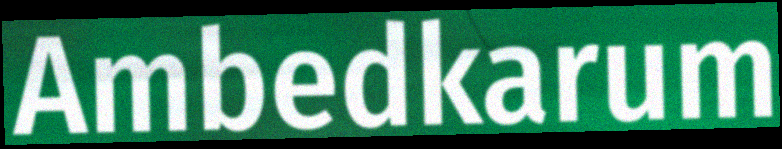
Ambedkarum